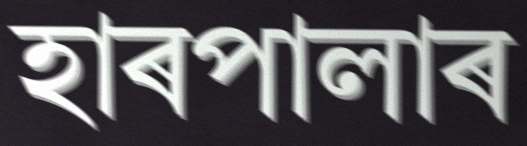
হাৰপালাৰ